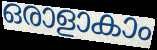
ഒരാളാകാം